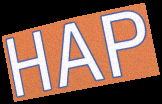
HAP